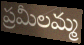
ప్రమీలమ్మ